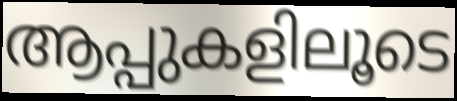
ആപ്പുകളിലൂടെ